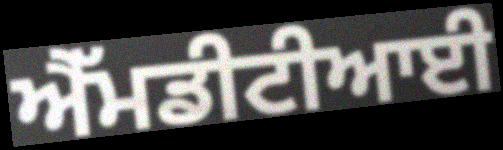
ਐੱਮਡੀਟੀਆਈ